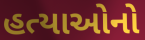
હત્યાઓનો